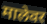
मालेवर